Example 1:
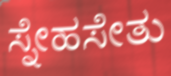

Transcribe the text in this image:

ಸ್ನೇಹಸೇತು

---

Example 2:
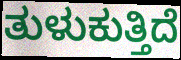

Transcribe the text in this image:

ತುಳುಕುತ್ತಿದೆ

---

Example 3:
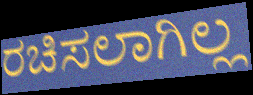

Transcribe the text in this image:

ರಚಿಸಲಾಗಿಲ್ಲ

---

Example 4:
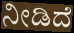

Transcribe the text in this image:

ನೀಡಿದೆ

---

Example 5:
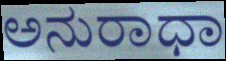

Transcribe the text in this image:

ಅನುರಾಧಾ